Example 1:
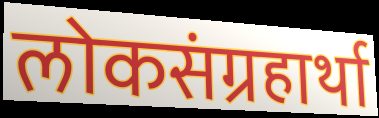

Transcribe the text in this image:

लोकसंग्रहार्था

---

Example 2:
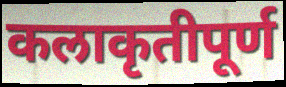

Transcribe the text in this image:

कलाकृतीपूर्ण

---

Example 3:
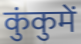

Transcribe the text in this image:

कुंकुमें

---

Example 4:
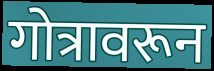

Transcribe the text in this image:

गोत्रावरून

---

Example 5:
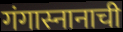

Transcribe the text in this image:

गंगास्नानाची